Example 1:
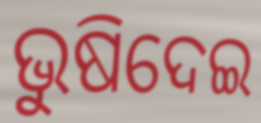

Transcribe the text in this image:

ଭୁଷିଦେଇ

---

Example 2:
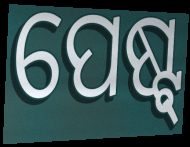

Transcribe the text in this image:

ପେଷ୍ଟ୍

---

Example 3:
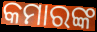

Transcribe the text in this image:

କମାରଙ୍କ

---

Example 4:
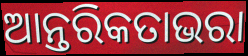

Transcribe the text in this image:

ଆନ୍ତରିକତାଭରା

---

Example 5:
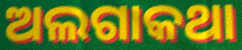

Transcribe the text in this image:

ଅଲଗାକଥା